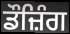
ਡੌਜ਼ਿੰਗ